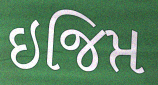
ઇજિપ્ત